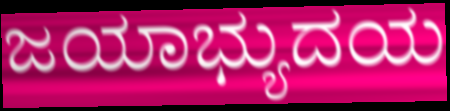
ಜಯಾಭ್ಯುದಯ